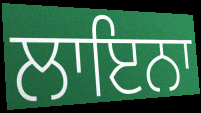
ਲਾਇਨਾ